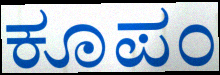
ಕೂಪಂ